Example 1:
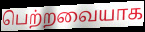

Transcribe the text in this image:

பெற்றவையாக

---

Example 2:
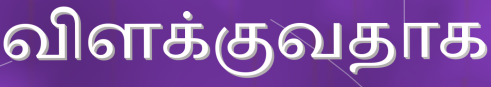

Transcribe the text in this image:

விளக்குவதாக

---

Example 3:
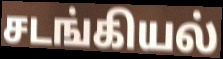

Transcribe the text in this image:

சடங்கியல்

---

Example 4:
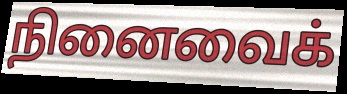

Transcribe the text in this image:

நினைவைக்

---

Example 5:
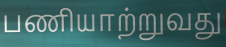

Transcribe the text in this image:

பணியாற்றுவது